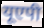
यूएपी